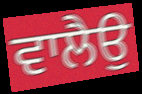
ਵਾਲੈਉ